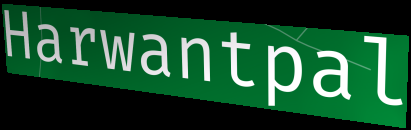
Harwantpal